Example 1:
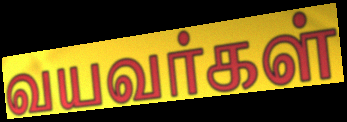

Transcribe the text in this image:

வயவர்கள்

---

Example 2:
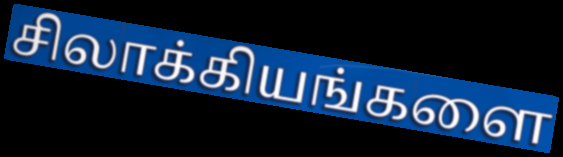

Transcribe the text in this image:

சிலாக்கியங்களை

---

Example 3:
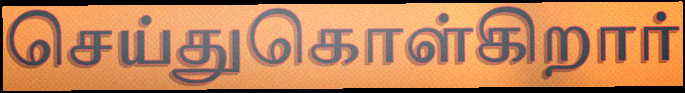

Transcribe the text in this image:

செய்துகொள்கிறார்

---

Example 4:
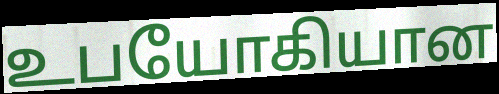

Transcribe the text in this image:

உபயோகியான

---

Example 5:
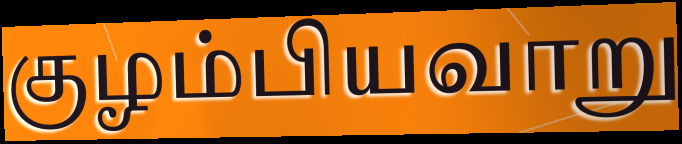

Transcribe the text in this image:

குழம்பியவாறு